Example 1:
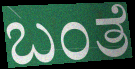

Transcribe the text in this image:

ಬಂತೆ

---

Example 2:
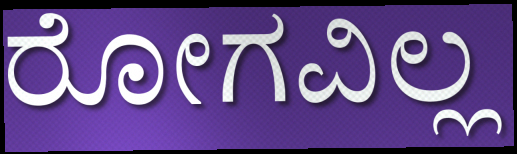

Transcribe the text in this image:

ರೋಗವಿಲ್ಲ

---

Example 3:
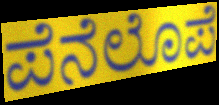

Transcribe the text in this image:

ಪೆನೆಲೊಪೆ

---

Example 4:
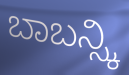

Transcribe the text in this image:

ಬಾಬನ್ಸ್ಕಿ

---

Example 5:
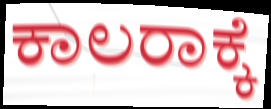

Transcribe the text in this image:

ಕಾಲರಾಕ್ಕೆ